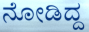
ನೋಡಿದ್ದ